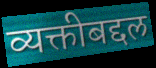
व्यक्तीबद्दल